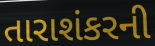
તારાશંકરની